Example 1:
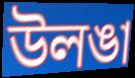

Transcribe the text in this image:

উলঙা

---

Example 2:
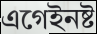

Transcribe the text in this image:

এগেইনষ্ট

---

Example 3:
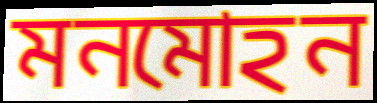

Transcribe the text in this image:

মনমোহন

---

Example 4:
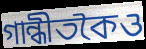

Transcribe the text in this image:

গান্ধীতকৈও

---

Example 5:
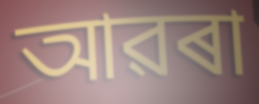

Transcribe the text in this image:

আৱৰা